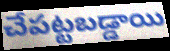
చేపట్టబడ్డాయి